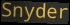
Snyder